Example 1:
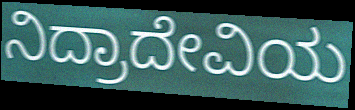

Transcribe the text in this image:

ನಿದ್ರಾದೇವಿಯ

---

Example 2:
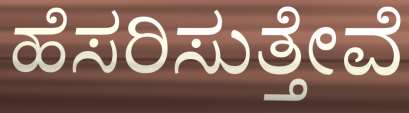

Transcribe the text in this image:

ಹೆಸರಿಸುತ್ತೇವೆ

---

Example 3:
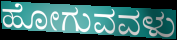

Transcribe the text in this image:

ಹೋಗುವವಳು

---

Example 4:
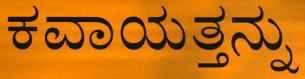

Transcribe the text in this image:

ಕವಾಯತ್ತನ್ನು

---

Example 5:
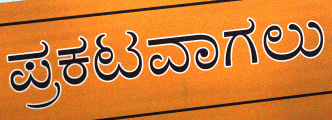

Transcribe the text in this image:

ಪ್ರಕಟವಾಗಲು